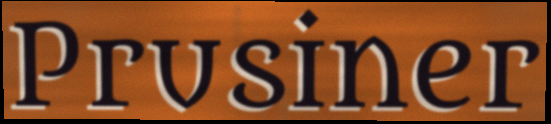
Prusiner